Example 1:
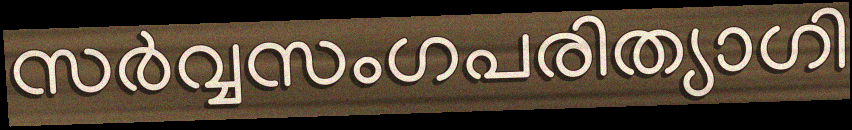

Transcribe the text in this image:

സർവ്വസംഗപരിത്യാഗി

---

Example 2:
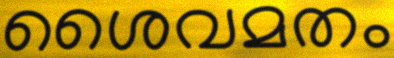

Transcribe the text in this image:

ശൈവമതം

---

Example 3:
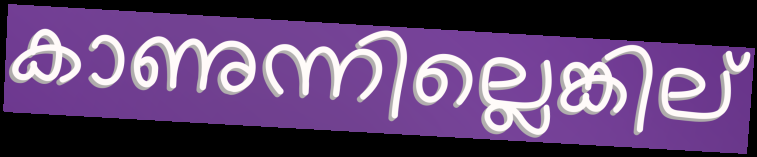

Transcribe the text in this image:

കാണുന്നില്ലെങ്കില്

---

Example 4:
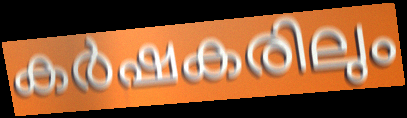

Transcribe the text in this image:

കർഷകരിലും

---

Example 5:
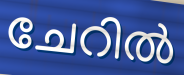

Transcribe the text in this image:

ചേറിൽ